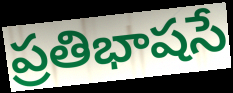
ప్రతిభాషసే